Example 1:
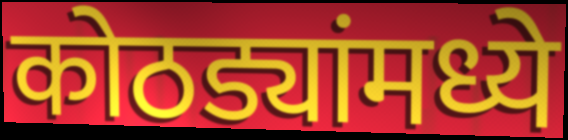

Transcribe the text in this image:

कोठड्यांमध्ये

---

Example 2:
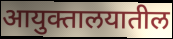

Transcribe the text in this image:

आयुक्तालयातील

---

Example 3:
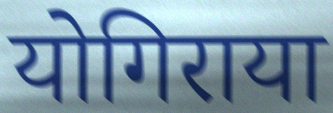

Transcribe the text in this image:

योगिराया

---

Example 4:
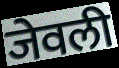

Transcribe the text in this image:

जेवली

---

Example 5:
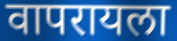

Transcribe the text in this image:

वापरायला